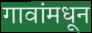
गावांमधून